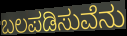
ಬಲಪಡಿಸುವೆನು